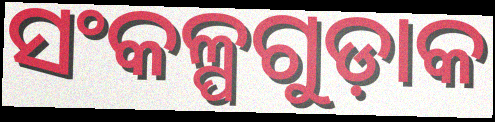
ସଂକଳ୍ପଗୁଡ଼ାକ